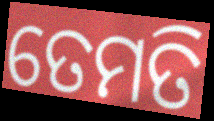
ତେମତି